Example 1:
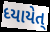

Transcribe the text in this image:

ધ્યાયેત્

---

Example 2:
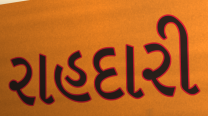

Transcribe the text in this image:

રાહદારી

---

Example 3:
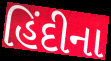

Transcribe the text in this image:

હિંદીના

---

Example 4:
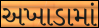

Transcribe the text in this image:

અખાડામાં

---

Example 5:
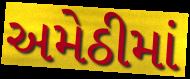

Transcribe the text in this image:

અમેઠીમાં